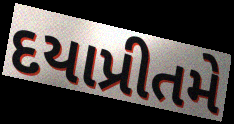
દયાપ્રીતમે